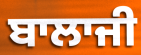
ਬਾਲਾਜੀ